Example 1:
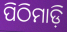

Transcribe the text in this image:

ପିଠିମାଡ଼ି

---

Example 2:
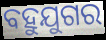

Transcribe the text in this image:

ବହୁଯୁଗର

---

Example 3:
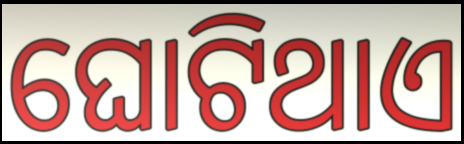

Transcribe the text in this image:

ଘୋଟିଥାଏ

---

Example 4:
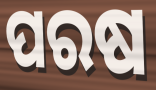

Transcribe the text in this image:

ପରଷ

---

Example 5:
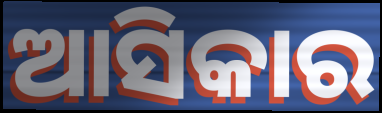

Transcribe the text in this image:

ଆସିକାର